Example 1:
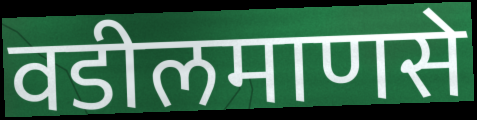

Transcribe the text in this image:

वडीलमाणसे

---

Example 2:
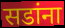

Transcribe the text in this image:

सडांना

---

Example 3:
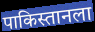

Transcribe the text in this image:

पाकिस्तानला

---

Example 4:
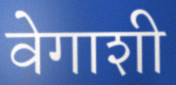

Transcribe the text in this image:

वेगाशी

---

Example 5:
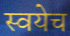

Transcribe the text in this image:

स्वयेच